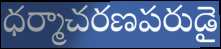
ధర్మాచరణపరుడై